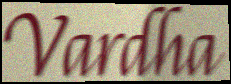
Vardha